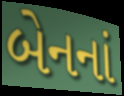
બેનનાં